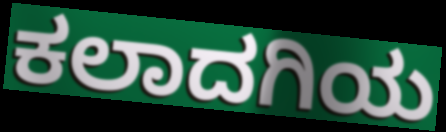
ಕಲಾದಗಿಯ